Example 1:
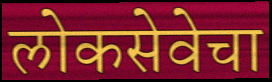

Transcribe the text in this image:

लोकसेवेचा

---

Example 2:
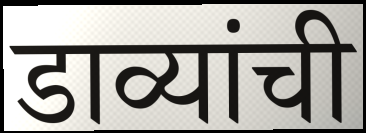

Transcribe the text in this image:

डाव्यांची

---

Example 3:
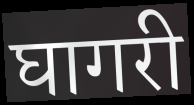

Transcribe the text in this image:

घागरी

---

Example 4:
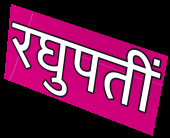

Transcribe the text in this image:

रघुपतीं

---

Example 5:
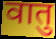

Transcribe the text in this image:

वातु